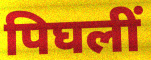
पिघलीं